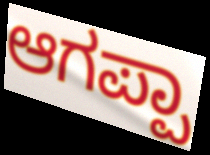
ಆಗಪ್ಪಾ